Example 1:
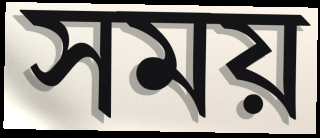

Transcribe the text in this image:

সময়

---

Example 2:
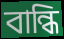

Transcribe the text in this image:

বান্ধি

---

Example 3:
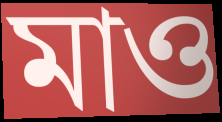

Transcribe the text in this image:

মাও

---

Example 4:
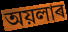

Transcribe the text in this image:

অয়লাৰ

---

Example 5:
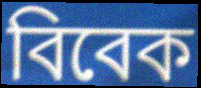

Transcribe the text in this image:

বিবেক